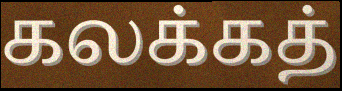
கலக்கத்